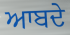
ਆਬਦੇ